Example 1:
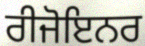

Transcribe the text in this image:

ਰੀਜੋਇਨਰ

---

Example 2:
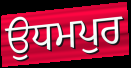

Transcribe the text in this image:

ਉਧਮਪੁਰ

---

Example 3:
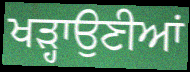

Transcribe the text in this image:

ਖੜ੍ਹਾਉਣੀਆਂ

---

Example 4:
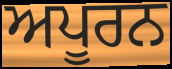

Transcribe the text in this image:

ਅਪੂਰਨ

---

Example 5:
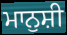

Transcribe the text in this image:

ਮਾਨੁਸ਼ੀ